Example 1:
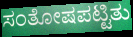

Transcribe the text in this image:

ಸಂತೋಷಪಟ್ಟಿತು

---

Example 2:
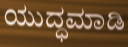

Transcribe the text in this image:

ಯುದ್ಧಮಾಡಿ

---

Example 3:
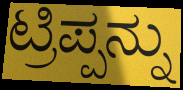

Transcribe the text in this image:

ಟ್ರಿಪ್ಪನ್ನು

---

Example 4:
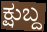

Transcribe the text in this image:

ಕ್ಷುಬ್ದ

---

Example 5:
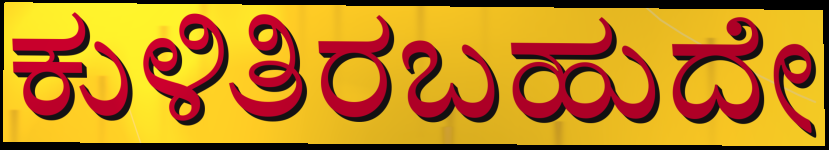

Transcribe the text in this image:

ಕುಳಿತಿರಬಹುದೇ